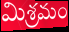
మిశ్రమం